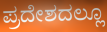
ಪ್ರದೇಶದಲ್ಲೂ